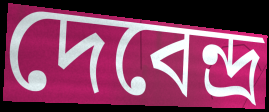
দেবেন্দ্র